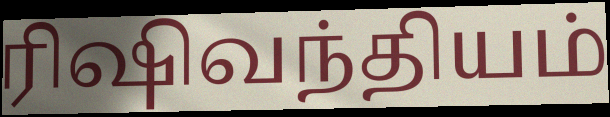
ரிஷிவந்தியம்